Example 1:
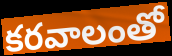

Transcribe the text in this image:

కరవాలంతో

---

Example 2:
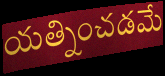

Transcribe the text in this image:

యత్నించడమే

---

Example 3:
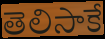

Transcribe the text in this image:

తెలిసాకే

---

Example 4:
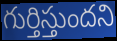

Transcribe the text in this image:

గుర్తిస్తుందని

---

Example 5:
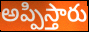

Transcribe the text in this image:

అప్పిస్తారు